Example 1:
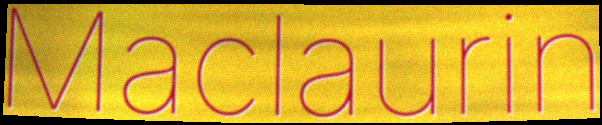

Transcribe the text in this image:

Maclaurin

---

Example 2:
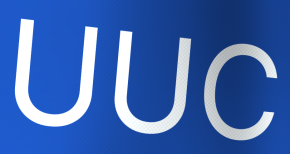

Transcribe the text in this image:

UUC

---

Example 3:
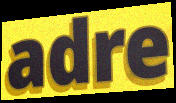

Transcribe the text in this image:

adre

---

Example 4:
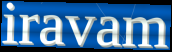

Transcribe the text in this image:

iravam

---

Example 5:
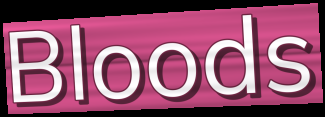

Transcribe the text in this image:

Bloods